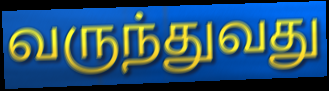
வருந்துவது